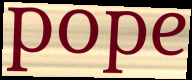
pope